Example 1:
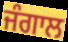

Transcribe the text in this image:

ਜੰਗਾਲ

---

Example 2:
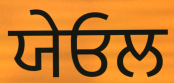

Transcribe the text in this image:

ਯੇਓਲ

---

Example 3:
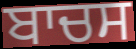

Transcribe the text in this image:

ਬਾਚਸ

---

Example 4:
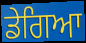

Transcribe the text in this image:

ਡੇਗਿਆ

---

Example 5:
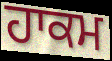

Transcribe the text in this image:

ਹਾਕਮ